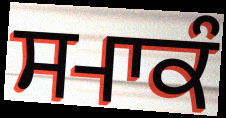
ਸ੍ਮਾਕੰ